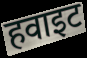
हवाइट